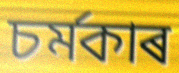
চৰ্মকাৰ